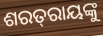
ଶରତ୍‌ରାୟଙ୍କୁ